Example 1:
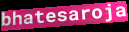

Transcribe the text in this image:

bhatesaroja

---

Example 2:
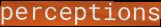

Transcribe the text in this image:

perceptions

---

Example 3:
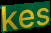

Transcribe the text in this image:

kes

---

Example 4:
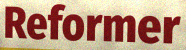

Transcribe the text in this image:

Reformer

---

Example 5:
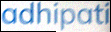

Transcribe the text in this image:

adhipati